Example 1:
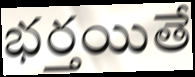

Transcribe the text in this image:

భర్తయితే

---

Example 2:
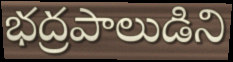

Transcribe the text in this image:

భద్రపాలుడిని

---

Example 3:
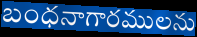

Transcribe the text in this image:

బంధనాగారములను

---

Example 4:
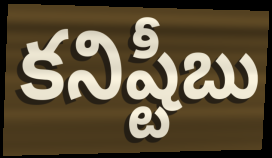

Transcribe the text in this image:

కనిష్టీబు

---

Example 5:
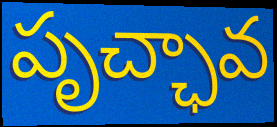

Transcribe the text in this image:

పృచ్ఛావ